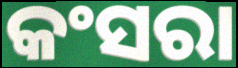
କଂସରା